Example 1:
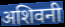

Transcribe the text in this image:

अशिवनी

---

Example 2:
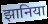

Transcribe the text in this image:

झानिया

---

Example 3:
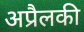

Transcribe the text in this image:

अप्रैलकी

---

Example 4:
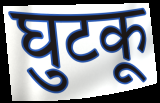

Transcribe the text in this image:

घुटकू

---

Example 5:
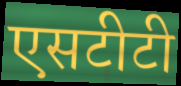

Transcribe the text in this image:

एसटीटी